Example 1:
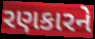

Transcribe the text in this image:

રણકારને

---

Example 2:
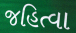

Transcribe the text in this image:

જહિત્વા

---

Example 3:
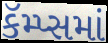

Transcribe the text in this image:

કૅમ્પ્સમાં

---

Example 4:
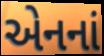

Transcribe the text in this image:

એનનાં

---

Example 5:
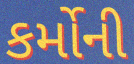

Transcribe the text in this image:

કર્મોની